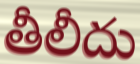
తీలీదు